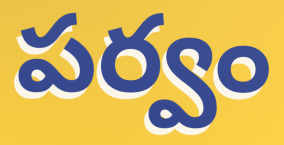
పర్వం